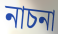
নাচনা